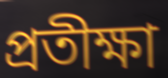
প্ৰতীক্ষা